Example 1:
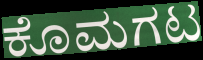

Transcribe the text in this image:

ಕೊಮಗಟ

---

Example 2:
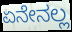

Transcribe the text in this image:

ಏನೇನಲ್ಲ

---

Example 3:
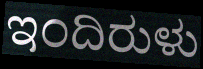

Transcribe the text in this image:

ಇಂದಿರುಳು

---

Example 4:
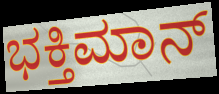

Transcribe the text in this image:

ಭಕ್ತಿಮಾನ್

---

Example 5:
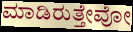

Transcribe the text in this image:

ಮಾಡಿರುತ್ತೇವೋ